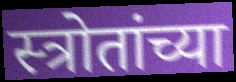
स्त्रोतांच्या